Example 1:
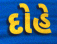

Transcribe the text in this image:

દોહે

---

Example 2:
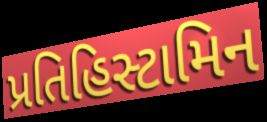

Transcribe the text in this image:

પ્રતિહિસ્ટામિન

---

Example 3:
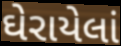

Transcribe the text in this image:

ઘેરાયેલાં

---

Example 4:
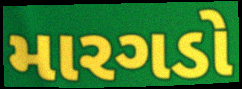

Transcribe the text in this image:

મારગડો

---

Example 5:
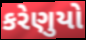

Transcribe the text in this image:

કરેણુયો